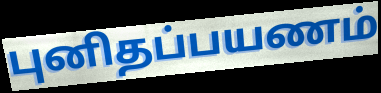
புனிதப்பயணம்